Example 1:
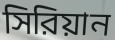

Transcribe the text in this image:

সিরিয়ান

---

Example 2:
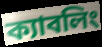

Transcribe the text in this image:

ক্যাবলিং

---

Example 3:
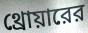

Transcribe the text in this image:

থ্রোয়ারের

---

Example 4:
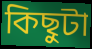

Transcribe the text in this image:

কিছুটা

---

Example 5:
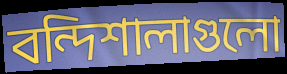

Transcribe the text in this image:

বন্দিশালাগুলো